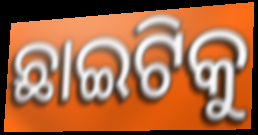
ଛାଇଟିକୁ